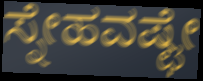
ಸ್ನೇಹವಷ್ಟೇ